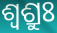
ଶ୍ଵଶ୍ରୁଃ